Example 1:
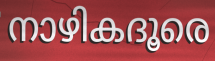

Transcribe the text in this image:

നാഴികദൂരെ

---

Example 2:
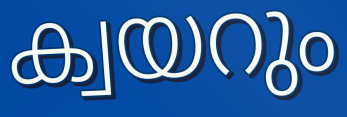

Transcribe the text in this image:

ക്വയറും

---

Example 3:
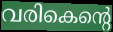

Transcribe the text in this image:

വരികെന്റെ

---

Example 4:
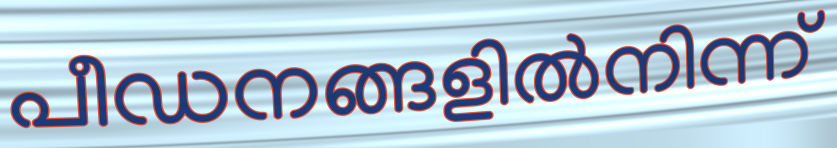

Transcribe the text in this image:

പീഡനങ്ങളിൽനിന്ന്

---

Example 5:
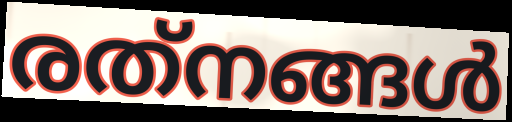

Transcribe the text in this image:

രത്‌നങ്ങൾ